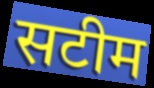
सटीम